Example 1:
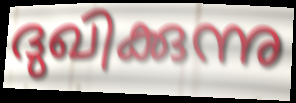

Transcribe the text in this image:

ദുഖിക്കുന്നു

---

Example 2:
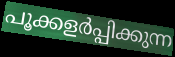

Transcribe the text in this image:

പൂക്കളർപ്പിക്കുന്ന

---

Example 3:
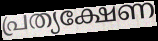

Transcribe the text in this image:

പ്രത്യക്ഷേണ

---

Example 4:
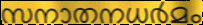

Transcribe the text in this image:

സനാതനധർമം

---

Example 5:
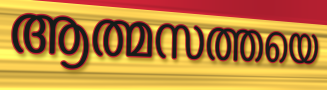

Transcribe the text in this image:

ആത്മസത്തയെ